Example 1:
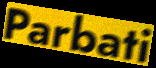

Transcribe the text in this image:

Parbati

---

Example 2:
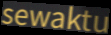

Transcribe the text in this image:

sewaktu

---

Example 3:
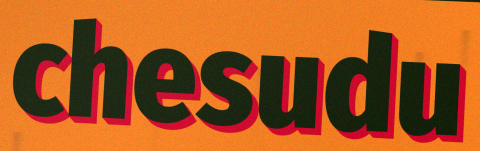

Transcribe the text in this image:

chesudu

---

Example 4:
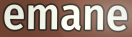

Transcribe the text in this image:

emane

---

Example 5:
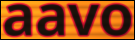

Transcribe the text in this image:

aavo